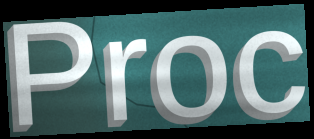
Proc